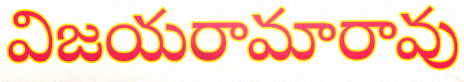
విజయరామారావు